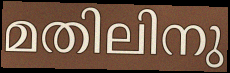
മതിലിനു